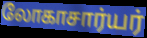
லோகாசார்யர்